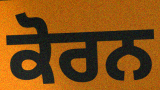
ਕੋਰਨ